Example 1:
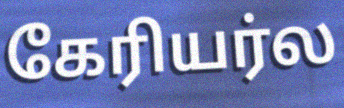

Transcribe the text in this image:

கேரியர்ல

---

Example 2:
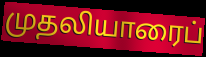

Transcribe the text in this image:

முதலியாரைப்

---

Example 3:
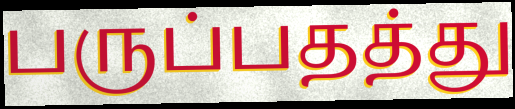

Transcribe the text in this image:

பருப்பதத்து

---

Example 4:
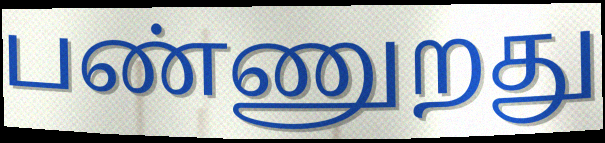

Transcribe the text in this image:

பண்ணுறது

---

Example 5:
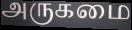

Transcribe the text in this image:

அருகமை